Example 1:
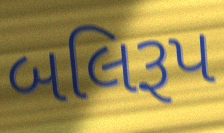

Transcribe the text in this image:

બલિરૂપ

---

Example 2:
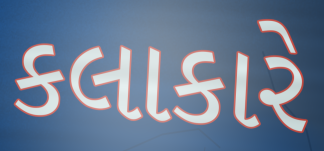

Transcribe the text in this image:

કલાકારે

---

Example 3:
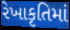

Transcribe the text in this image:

રેખાકૃતિમાં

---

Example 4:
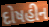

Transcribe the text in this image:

દોષહીન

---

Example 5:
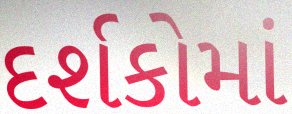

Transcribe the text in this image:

દર્શકોમાં